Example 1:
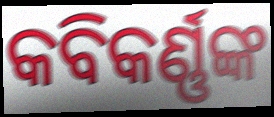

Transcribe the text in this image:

କବିକର୍ଣ୍ଣଙ୍କ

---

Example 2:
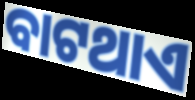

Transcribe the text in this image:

ବାଟଥାଏ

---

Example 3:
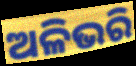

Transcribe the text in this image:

ଅଳିଭରି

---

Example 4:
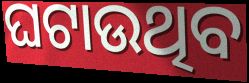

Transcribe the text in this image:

ଘଟାଉଥିବ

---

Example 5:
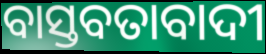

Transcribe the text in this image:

ବାସ୍ତବତାବାଦୀ